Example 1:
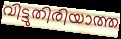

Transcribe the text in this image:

വിട്ടുതിരിയാത്ത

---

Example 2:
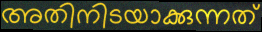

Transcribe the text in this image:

അതിനിടയാക്കുന്നത്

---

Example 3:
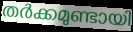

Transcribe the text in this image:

തർക്കമുണ്ടായി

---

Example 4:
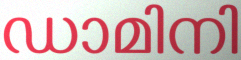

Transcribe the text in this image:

ഡാമിനി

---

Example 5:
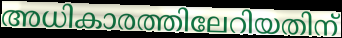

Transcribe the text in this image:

അധികാരത്തിലേറിയതിന്